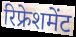
रिफ्रेशमेंट